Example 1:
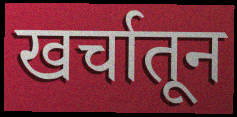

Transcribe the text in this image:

खर्चातून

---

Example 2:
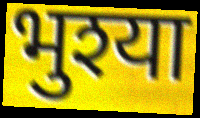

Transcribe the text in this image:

भुश्या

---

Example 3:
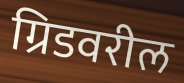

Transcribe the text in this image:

ग्रिडवरील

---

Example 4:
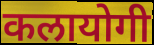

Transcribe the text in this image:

कलायोगी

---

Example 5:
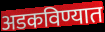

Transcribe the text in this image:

अडकविण्यात